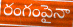
రంగంపైనా